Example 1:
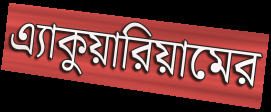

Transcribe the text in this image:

এ্যাকুয়ারিয়ামের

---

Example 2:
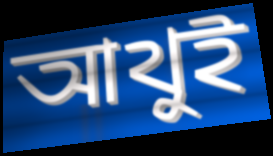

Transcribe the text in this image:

আথুই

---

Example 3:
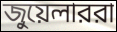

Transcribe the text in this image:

জুয়েলাররা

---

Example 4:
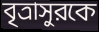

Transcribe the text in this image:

বৃত্রাসুরকে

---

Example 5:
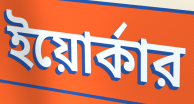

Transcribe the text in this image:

ইয়োর্কার